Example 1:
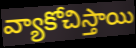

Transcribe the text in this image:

వ్యాకోచిస్తాయి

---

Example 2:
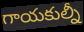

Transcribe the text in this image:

గాయకుల్నీ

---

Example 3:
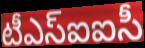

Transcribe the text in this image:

టీఎస్ఐఐసీ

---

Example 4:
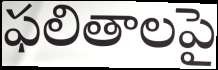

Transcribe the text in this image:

ఫలితాలపై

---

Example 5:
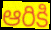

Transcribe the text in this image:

ఆరికి